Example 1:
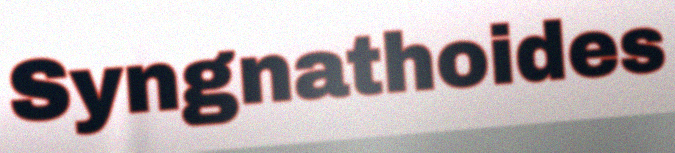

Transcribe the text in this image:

Syngnathoides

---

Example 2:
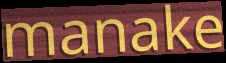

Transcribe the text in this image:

manake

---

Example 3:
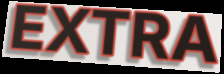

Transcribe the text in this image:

EXTRA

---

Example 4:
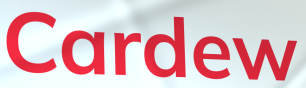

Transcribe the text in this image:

Cardew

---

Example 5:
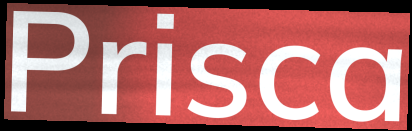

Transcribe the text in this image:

Prisca